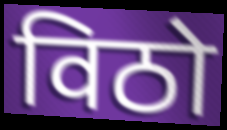
विठो